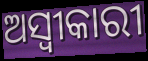
ଅସ୍ଵୀକାରୀ